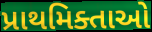
પ્રાથમિક્તાઓ